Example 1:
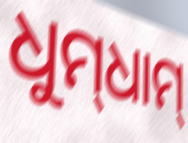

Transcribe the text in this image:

ଧୁମ୍‌ଧାମ୍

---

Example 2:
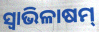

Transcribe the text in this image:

ସ୍ବାଭିଳାଷମ୍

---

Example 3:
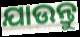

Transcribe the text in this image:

ଯାଉନ୍ତୁ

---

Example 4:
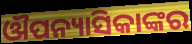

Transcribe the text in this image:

ଔପନ୍ୟାସିକାଙ୍କର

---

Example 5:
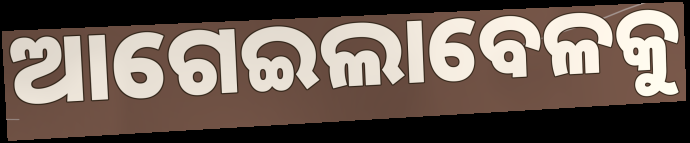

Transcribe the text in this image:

ଆଗେଇଲାବେଳକୁ